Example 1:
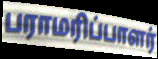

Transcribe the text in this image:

பராமரிப்பாளர்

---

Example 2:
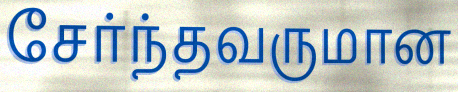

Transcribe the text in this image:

சேர்ந்தவருமான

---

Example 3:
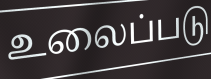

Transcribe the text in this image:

உலைப்படு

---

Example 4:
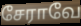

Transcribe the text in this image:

சேராவே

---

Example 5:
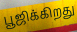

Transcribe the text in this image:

பூஜிக்கிறது